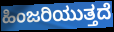
ಹಿಂಜರಿಯುತ್ತದೆ